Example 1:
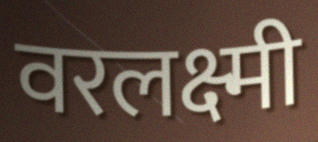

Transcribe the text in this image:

वरलक्ष्‍मी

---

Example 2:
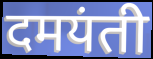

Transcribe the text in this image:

दमयंती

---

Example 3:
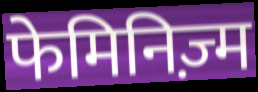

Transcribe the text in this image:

फेमिनिज़्म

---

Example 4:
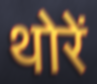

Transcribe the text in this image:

थोरें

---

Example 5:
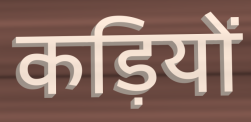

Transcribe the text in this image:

कड़ियों